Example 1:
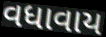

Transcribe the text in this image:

વધાવાય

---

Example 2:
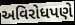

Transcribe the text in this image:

અવિરોધપણે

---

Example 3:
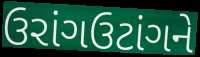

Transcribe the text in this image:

ઉરાંગઉટાંગને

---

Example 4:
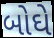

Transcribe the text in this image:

બોઘે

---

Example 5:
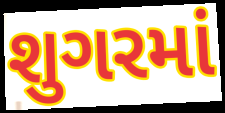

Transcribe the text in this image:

શુગરમાં